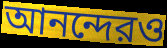
আনন্দেরও